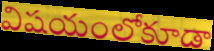
విషయంలోకూడా